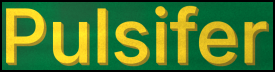
Pulsifer